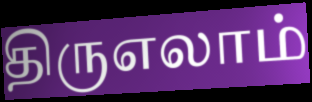
திருஎலாம்